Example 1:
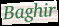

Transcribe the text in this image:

Baghir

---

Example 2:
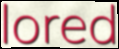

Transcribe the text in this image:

lored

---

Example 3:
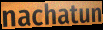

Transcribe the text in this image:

nachatun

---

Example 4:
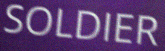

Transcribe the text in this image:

SOLDIER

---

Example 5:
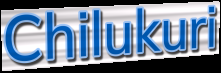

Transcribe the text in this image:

Chilukuri